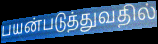
பயன்படுத்துவதில்